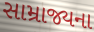
સામ્રાજ્યના